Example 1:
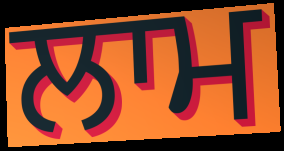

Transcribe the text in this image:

ਲਾਮ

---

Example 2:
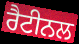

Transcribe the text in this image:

ਰੈਟੀਨਲ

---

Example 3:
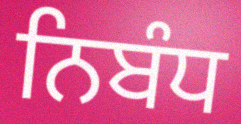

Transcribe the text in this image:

ਨਿਬੰਧ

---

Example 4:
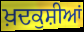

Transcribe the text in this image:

ਖ਼ਦਕੁਸ਼ੀਆਂ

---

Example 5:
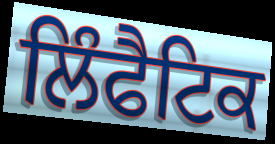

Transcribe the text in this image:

ਲਿੰਫੈਟਿਕ